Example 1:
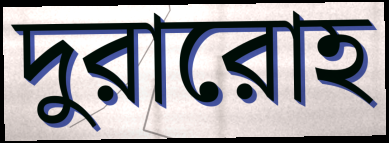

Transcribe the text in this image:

দুরারোহ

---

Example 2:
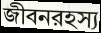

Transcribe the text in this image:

জীবনরহস্য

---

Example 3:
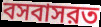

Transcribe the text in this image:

বসবাসরত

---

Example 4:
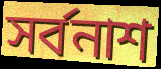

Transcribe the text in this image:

সর্বনাশ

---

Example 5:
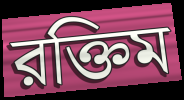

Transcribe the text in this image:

রক্তিম